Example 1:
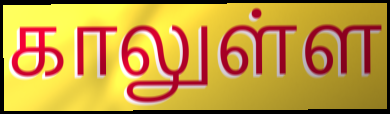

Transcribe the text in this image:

காலுள்ள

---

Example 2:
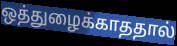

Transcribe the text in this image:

ஒத்துழைக்காததால்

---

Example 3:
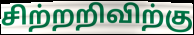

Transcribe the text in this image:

சிற்றறிவிற்கு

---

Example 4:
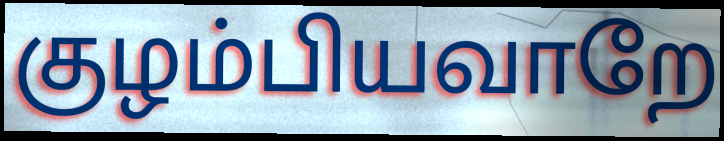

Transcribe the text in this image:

குழம்பியவாறே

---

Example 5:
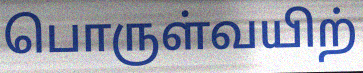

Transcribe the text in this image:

பொருள்வயிற்